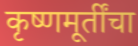
कृष्णमूर्तींचा